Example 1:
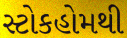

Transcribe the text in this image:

સ્ટોકહોમથી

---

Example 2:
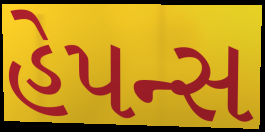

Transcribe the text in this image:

હેપન્સ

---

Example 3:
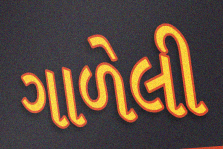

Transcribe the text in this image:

ગાળેલી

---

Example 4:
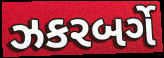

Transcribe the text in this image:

ઝકરબર્ગે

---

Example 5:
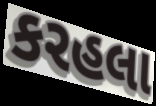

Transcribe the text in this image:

કરહલા